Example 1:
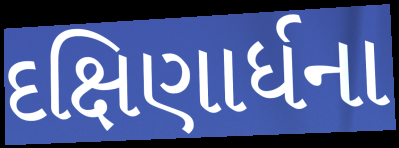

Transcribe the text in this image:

દક્ષિણાર્ધના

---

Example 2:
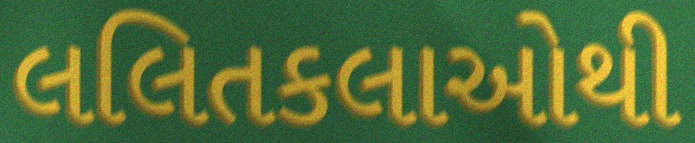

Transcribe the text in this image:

લલિતકલાઓથી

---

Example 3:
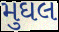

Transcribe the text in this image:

મુઘલ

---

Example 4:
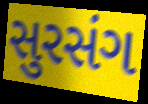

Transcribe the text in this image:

સુરસંગ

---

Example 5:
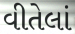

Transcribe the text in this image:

વીતેલાં